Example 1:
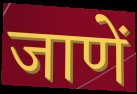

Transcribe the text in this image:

जाणें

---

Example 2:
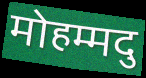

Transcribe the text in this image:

मोहम्मदु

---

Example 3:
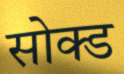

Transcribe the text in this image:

सोक्ड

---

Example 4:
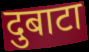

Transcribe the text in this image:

दुबाटा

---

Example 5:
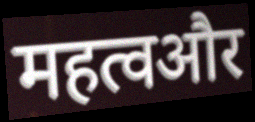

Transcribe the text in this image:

महत्वऔर